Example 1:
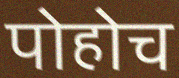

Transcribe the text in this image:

पोहोच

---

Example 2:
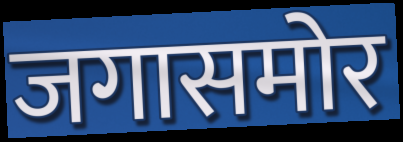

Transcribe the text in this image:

जगासमोर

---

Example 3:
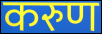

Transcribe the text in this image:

करुण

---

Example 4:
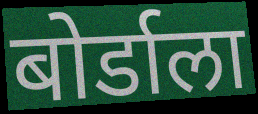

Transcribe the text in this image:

बोर्डाला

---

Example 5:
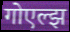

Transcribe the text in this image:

गोएल्झ